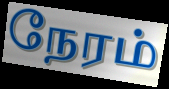
நேரம்